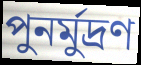
পুনর্মুদ্রণ